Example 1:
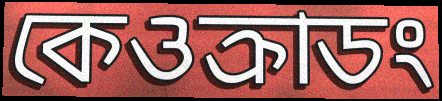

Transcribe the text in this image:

কেওক্রাডং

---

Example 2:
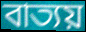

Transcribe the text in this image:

বাত্যয়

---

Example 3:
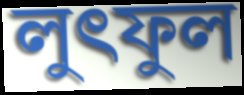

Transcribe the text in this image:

লুৎফুল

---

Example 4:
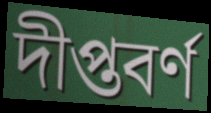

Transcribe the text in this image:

দীপ্তবর্ণ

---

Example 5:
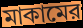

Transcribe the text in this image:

মাকামের